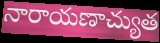
నారాయణాచ్యుత